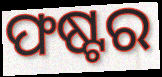
ଫଷ୍ଟର